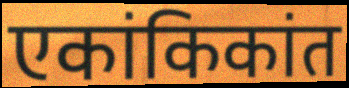
एकांकिकांत